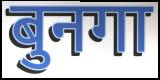
बुनगा